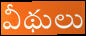
వీథులు